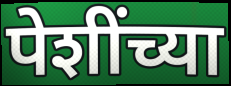
पेशींच्या